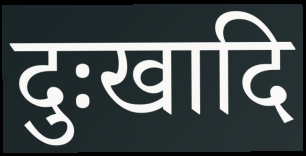
दुःखादि